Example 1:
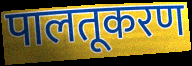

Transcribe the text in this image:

पालतूकरण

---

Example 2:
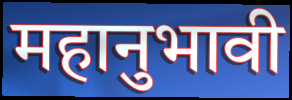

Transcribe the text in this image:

महानुभावी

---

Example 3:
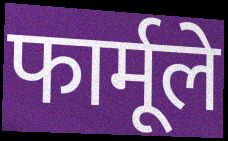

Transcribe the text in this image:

फार्मूले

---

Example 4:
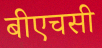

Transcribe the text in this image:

बीएचसी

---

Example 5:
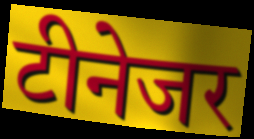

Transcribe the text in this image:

टीनेजर